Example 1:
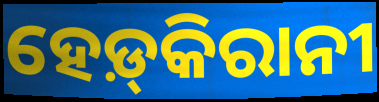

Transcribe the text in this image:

ହେଡ଼୍‌କିରାନୀ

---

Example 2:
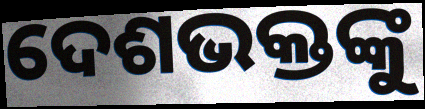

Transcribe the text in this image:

ଦେଶଭକ୍ତଙ୍କୁ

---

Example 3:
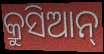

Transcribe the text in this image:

କ୍ରୁସିଆନ୍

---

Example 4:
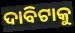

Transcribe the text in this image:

ଦାବିଟାକୁ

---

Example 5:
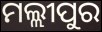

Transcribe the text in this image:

ମଲ୍ଲୀପୁର